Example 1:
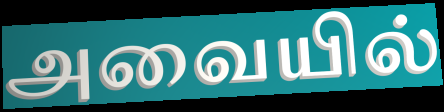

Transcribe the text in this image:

அவையில்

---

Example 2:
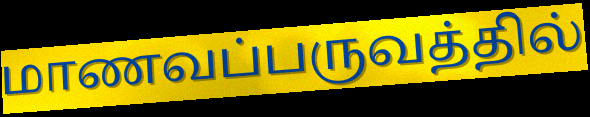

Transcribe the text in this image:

மாணவப்பருவத்தில்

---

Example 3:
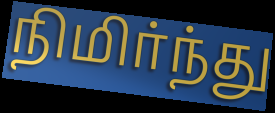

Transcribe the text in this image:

நிமிர்ந்து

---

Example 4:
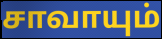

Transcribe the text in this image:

சாவாயும்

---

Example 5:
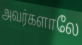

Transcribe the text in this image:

அவர்களாலே